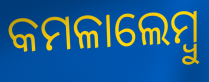
କମଳାଲେମ୍ୱୁ